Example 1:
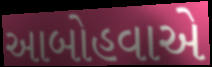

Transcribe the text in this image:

આબોહવાએ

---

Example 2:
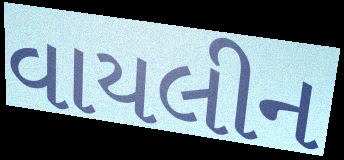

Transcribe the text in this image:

વાયલીન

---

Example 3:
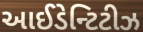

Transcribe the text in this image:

આઈડેન્ટિટીઝ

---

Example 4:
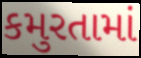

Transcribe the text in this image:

કમુરતામાં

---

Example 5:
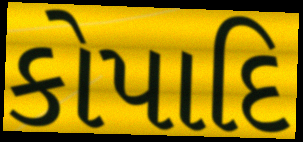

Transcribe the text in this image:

કોપાદિ